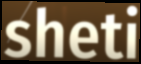
sheti